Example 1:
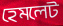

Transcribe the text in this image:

হেমলেট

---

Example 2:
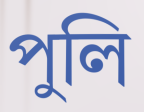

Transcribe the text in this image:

পুলি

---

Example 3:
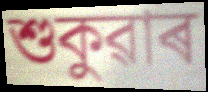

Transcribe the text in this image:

শুকুৱাৰ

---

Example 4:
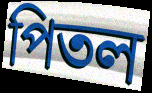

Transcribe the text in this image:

পিতল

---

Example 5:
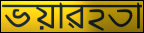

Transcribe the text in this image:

ভয়াৱহতা